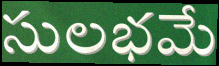
సులభమే